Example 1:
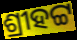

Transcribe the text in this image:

ଶ୍ରୀହଟ୍ଟ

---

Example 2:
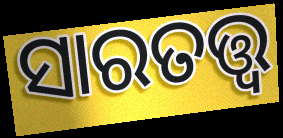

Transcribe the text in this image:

ସାରତତ୍ତ୍ୱ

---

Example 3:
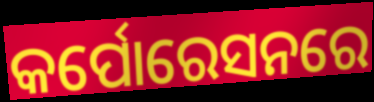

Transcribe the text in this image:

କର୍ପୋରେସନରେ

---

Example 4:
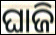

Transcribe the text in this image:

ଘାଜି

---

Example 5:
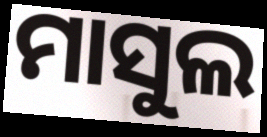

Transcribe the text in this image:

ମାସୁଲ